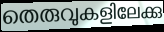
തെരുവുകളിലേക്കു